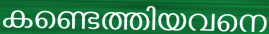
കണ്ടെത്തിയവനെ